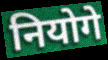
नियोगे